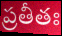
ప్రతీతః